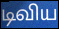
டிவிய